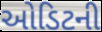
ઓડિટની